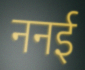
ननई